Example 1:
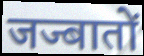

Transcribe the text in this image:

जज्बातों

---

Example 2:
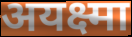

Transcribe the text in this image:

अयक्ष्मा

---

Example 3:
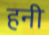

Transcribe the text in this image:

हनी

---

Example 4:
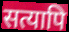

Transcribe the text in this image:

सत्यापि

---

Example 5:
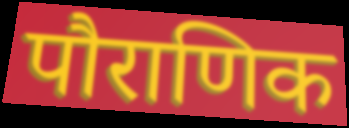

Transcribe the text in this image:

पौराणिक